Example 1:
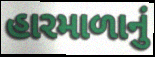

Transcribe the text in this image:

હારમાળાનું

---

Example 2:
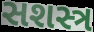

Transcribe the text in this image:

સશસ્ત્ર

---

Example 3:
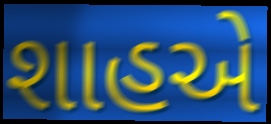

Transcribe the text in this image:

શાહએ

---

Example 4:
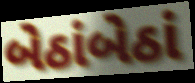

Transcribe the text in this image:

બેઠાંબેઠાં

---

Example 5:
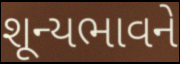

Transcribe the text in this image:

શૂન્યભાવને